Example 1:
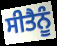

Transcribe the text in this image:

ਸੀਤੈਨੂੰ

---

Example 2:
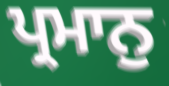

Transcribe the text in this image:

ਪ੍ਰਮਾਨੁ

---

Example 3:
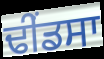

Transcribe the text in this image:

ਢੀੰਂਡਸਾ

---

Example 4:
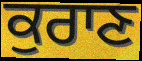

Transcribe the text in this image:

ਕੁਰਾਣ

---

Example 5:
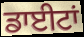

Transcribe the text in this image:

ਡਾਈਟਾਂ